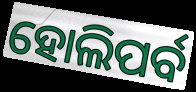
ହୋଲିପର୍ବ